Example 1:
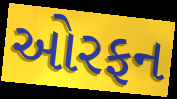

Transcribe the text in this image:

ઓરફન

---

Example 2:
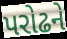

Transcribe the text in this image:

પરોઢને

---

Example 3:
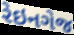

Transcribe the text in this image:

રેઇનગેજ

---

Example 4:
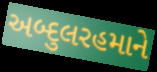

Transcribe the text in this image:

અબ્દુલરહમાને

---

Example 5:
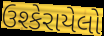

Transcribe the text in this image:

ઉશ્કેરાયેલો